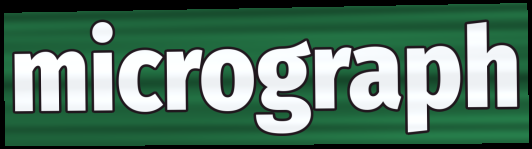
micrograph